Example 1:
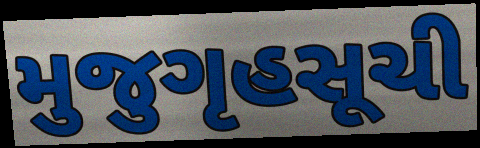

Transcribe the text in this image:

મુજુગૃહસૂચી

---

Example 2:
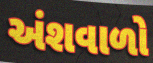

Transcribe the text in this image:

અંશવાળો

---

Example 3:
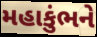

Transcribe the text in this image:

મહાકુંભને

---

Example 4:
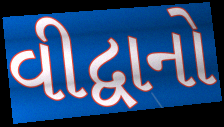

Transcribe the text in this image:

વીદ્વાનો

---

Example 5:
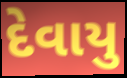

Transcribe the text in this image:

દેવાયુ